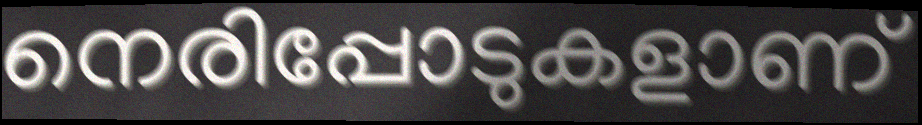
നെരിപ്പോടുകളാണ്